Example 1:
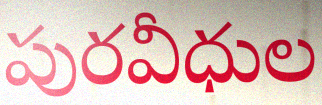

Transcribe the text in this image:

పురవీధుల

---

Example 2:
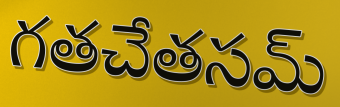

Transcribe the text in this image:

గతచేతసమ్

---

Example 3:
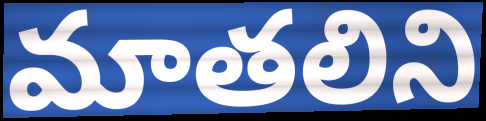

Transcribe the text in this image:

మాతలిని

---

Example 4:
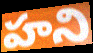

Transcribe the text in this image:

హని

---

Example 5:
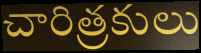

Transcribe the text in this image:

చారిత్రకులు